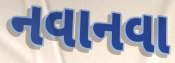
નવાનવા